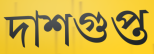
দাশগুপ্ত